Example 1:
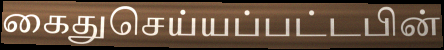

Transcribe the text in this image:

கைதுசெய்யப்பட்டபின்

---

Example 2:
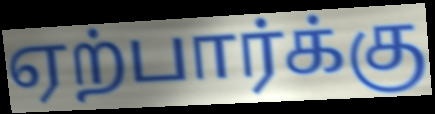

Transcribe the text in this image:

ஏற்பார்க்கு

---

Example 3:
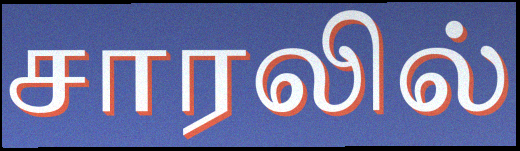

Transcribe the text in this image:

சாரலில்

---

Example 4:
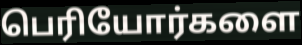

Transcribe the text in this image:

பெரியோர்களை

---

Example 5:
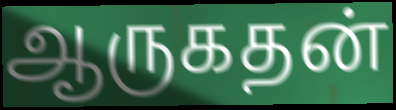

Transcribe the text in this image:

ஆருகதன்